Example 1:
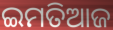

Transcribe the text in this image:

ଇମତିଆଜ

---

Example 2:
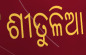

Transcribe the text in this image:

ଶୀତୁଳିଆ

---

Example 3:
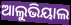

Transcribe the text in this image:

ଆଲୁଭିୟାଲ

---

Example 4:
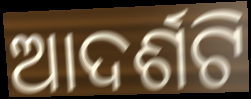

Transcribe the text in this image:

ଆଦର୍ଶଟି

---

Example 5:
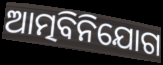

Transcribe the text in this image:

ଆତ୍ମବିନିଯୋଗ